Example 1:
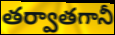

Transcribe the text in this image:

తర్వాతగానీ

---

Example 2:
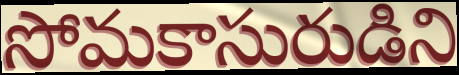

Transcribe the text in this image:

సోమకాసురుడిని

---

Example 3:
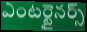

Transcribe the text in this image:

ఎంటర్టైనర్స్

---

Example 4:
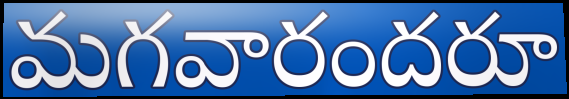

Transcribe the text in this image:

మగవారందరూ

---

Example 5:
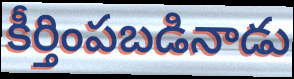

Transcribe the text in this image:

కీర్తింపబడినాడు